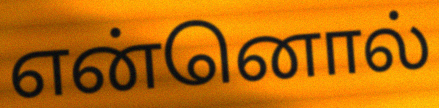
என்னொல்